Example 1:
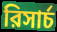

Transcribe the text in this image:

রিসার্চ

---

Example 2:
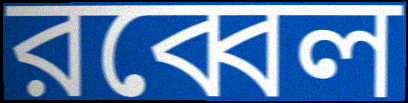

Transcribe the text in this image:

রব্বেল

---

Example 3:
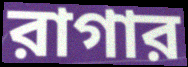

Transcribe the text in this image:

রাগার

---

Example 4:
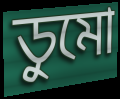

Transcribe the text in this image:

ডুমো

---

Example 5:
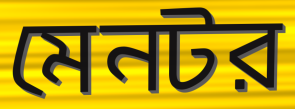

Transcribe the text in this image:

মেনটর